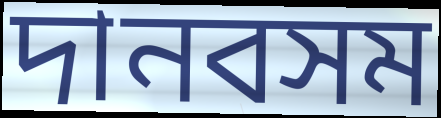
দানবসম